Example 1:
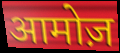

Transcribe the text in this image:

आमोज़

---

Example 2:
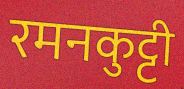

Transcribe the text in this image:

रमनकुट्टी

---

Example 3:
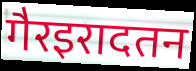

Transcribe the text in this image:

गैरइरादतन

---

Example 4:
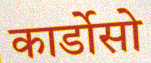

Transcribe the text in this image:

कार्डोसो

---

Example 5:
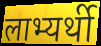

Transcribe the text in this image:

लाभ्यर्थी